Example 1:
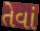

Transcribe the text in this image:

તેવાં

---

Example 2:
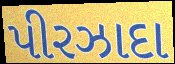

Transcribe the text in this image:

પીરઝાદા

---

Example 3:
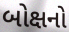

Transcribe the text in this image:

બોક્ષનો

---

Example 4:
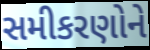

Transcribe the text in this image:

સમીકરણોને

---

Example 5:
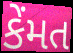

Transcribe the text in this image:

કેંમત